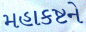
મહાકષ્ટને